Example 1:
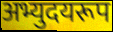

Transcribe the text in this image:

अभ्युदयरूप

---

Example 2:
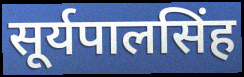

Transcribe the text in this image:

सूर्यपालसिंह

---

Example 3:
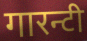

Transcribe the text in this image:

गारन्टी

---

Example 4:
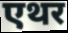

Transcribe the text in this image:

एथर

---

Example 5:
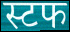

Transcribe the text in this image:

स्टफ